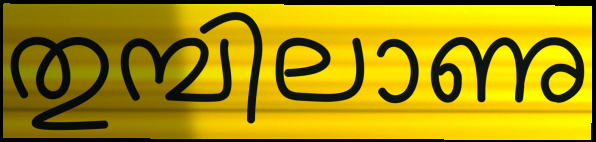
തുമ്പിലാണു